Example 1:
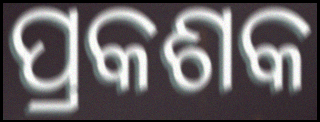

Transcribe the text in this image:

ପ୍ରକଶକ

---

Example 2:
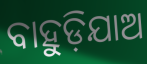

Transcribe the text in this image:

ବାହୁଡ଼ିଯାଅ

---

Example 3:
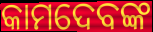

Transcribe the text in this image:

କାମଦେବଙ୍କ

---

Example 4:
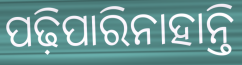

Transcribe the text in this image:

ପଢ଼ିପାରିନାହାନ୍ତି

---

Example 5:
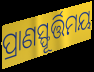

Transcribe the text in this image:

ପ୍ରାଣସ୍ଫୂର୍ତ୍ତିମୟ